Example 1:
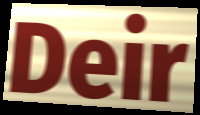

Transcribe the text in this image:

Deir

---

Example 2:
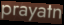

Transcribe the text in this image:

prayatn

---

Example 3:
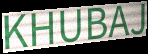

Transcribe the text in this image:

KHUBAJ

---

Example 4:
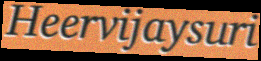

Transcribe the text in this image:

Heervijaysuri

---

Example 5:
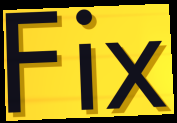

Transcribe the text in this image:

Fix